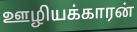
ஊழியக்காரன்